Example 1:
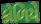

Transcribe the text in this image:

કોળિયે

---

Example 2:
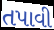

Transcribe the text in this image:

તપાવી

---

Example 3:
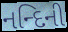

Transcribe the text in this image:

નન્દિની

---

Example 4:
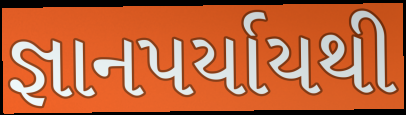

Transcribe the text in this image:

જ્ઞાનપર્યાયથી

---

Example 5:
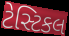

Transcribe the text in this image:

ટેસ્ટિકલ